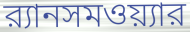
র‍্যানসমওয়্যার